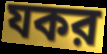
যকর